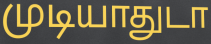
முடியாதுடா